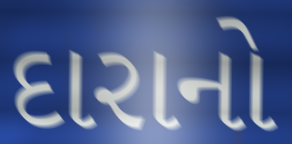
દારાનો